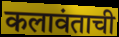
कलावंताची